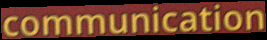
communication